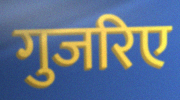
गुजरिए